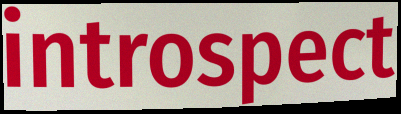
introspect